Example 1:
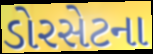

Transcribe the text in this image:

ડોરસેટના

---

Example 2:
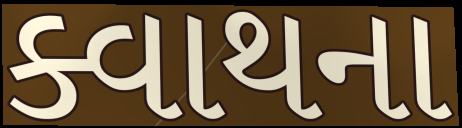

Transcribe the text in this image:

ક્વાથના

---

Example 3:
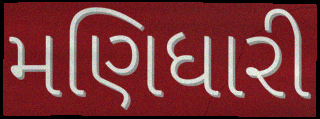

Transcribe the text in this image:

મણિધારી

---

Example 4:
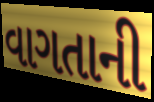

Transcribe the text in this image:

વાગતાની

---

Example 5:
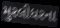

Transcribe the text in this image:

મુરલીધરના